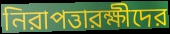
নিরাপত্তারক্ষীদের